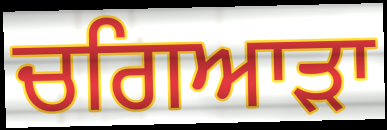
ਚਗਿਆੜਾ